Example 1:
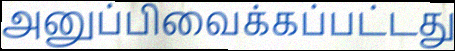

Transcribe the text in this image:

அனுப்பிவைக்கப்பட்டது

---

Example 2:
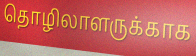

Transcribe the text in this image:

தொழிலாளருக்காக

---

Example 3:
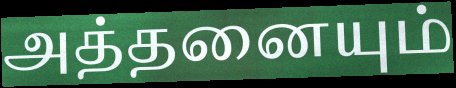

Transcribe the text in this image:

அத்தனையும்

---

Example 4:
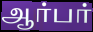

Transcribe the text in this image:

ஆர்பர்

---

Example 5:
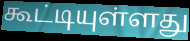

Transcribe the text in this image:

கூட்டியுள்ளது